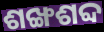
ଶଙ୍ଖଶବ୍ଦ